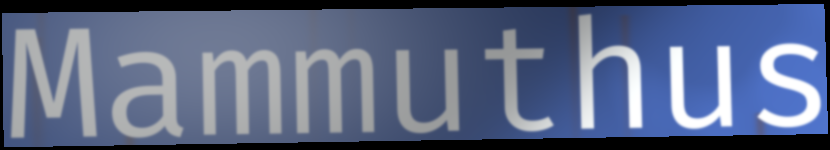
Mammuthus